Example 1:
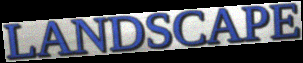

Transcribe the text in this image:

LANDSCAPE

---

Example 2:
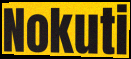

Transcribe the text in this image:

Nokuti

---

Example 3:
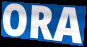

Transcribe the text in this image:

ORA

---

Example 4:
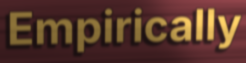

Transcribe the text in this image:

Empirically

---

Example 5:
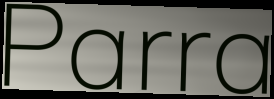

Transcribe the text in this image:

Parra